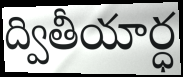
ద్వితీయార్ధ